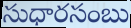
సుధారసంబు